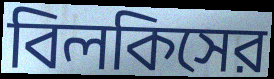
বিলকিসের